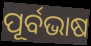
ପୂର୍ବଭାଷ